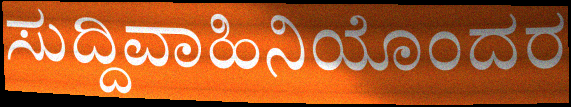
ಸುದ್ದಿವಾಹಿನಿಯೊಂದರ